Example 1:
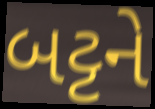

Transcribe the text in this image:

બટ્ટને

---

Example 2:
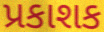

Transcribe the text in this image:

પ્રકાશક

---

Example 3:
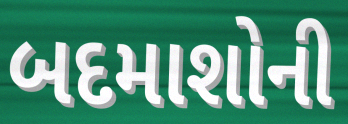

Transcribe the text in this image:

બદમાશોની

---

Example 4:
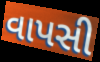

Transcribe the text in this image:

વાપસી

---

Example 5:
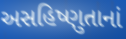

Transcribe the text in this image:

અસહિષ્ણુતાનાં